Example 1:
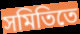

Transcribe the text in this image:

সমিতিতে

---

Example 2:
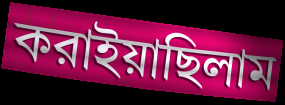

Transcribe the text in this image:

করাইয়াছিলাম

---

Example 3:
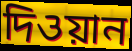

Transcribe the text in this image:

দিওয়ান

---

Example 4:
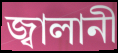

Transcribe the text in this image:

জ্বালানী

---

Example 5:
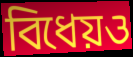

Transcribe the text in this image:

বিধেয়ও